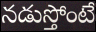
నడుస్తోంటే